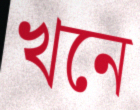
খনে